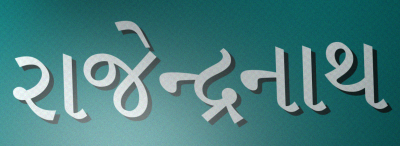
રાજેન્દ્રનાથ